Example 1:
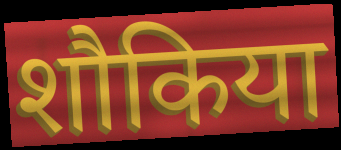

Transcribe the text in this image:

शौकिया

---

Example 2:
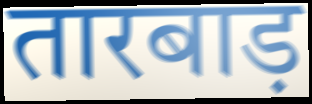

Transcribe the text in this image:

तारबाड़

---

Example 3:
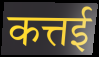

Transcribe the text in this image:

कत्तई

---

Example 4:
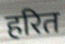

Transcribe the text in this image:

हरित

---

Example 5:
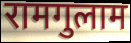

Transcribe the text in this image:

रामगुलाम